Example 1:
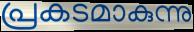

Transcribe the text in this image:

പ്രകടമാകുന്നു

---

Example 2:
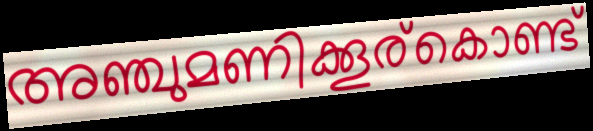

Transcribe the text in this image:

അഞ്ചുമണിക്കൂര്കൊണ്ട്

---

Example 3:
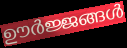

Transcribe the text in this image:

ഊർജ്ജങ്ങൾ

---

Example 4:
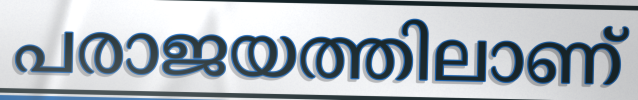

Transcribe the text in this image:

പരാജയത്തിലാണ്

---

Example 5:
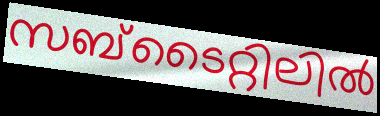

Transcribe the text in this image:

സബ്ടൈറ്റിലിൽ